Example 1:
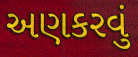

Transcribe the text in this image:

અણકરવું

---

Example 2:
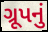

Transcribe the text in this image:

ગ્રૂપનું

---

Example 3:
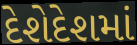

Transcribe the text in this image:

દેશેદેશમાં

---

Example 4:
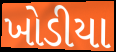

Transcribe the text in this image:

ખોડીયા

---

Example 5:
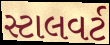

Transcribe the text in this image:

સ્ટાલવર્ટ